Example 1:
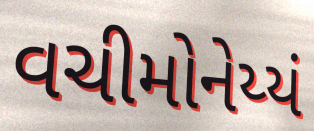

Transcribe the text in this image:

વચીમોનેય્યં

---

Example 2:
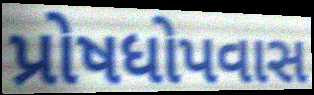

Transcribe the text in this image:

પ્રોષધોપવાસ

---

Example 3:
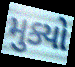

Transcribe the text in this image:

મુક્યો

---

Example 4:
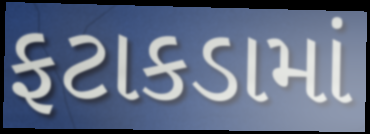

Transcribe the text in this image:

ફટાકડામાં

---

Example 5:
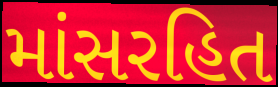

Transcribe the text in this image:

માંસરહિત